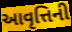
આવૃત્તિની